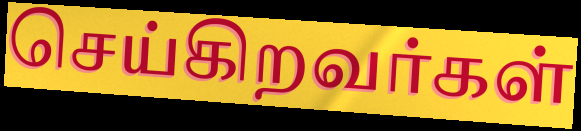
செய்கிறவர்கள்